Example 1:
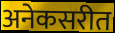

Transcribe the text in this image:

अनेकसरीत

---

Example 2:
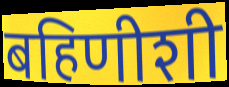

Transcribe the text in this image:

बहिणीशी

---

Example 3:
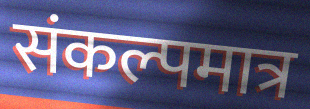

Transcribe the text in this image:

संकल्पमात्र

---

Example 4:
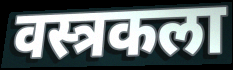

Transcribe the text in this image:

वस्त्रकला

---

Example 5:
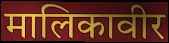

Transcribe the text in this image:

मालिकावीर